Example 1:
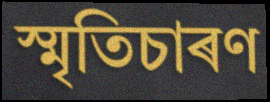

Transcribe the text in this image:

স্মৃতিচাৰণ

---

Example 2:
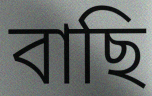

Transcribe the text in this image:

বাছি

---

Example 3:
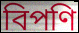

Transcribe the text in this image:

বিপণি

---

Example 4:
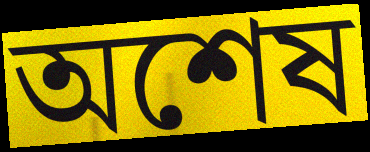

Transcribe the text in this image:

অশেষ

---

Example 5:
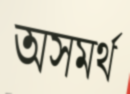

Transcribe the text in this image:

অসমৰ্থ